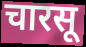
चारसू